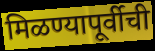
मिळण्यापूर्वीची